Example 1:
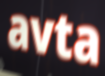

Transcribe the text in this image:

avta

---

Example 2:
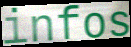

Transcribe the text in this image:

infos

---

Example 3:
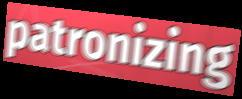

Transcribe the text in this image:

patronizing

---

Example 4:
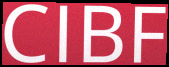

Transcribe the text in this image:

CIBF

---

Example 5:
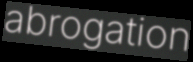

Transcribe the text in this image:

abrogation